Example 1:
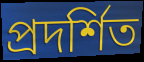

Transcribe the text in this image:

প্ৰদৰ্শিত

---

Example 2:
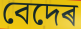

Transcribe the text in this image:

বেদেৰ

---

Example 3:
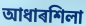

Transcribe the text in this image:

আধাৰশিলা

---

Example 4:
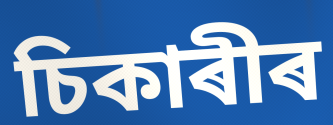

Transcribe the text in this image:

চিকাৰীৰ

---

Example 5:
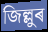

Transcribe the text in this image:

জিল্লুৰ